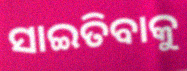
ସାଇତିବାକୁ